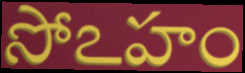
సోఽహం